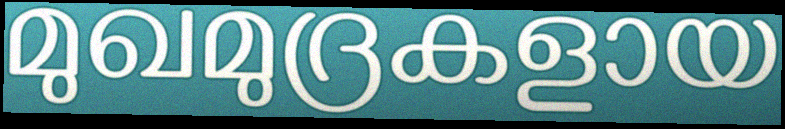
മുഖമുദ്രകളായ